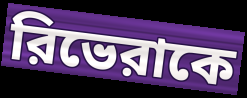
রিভেরাকে